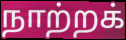
நாற்றக்